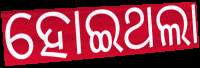
ହୋଇଥଲା